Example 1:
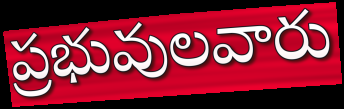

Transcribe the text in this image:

ప్రభువులవారు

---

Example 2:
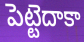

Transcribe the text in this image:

పెట్టెదాకా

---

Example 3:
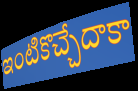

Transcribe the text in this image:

ఇంటికొచ్చేదాకా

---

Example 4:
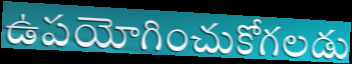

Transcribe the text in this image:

ఉపయోగించుకోగలడు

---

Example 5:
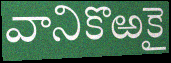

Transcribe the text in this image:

వానికొఱకై